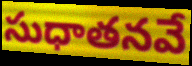
సుధాతనవే